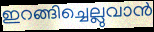
ഇറങ്ങിച്ചെല്ലുവാൻ